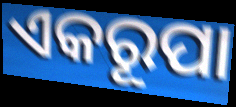
ଏକରୂପା